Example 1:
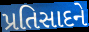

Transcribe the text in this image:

પ્રતિસાદને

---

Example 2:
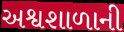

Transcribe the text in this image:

અશ્વશાળાની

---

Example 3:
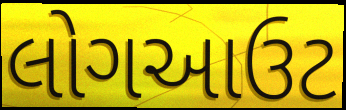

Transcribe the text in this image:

લોગઆઉટ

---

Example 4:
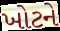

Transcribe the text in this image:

ખોટને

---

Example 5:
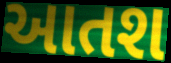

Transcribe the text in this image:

આતશ